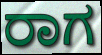
ರಾಗ